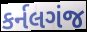
કર્નલગંજ